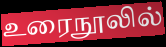
உரைநூலில்